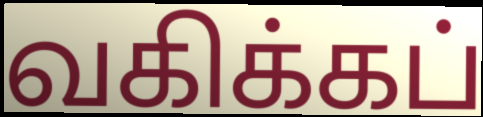
வகிக்கப்